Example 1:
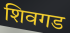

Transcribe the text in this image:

शिवगड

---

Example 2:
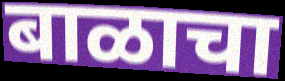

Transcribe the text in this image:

बाळाचा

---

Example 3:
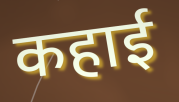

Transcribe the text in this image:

कहाई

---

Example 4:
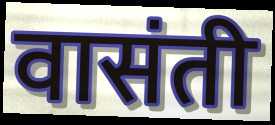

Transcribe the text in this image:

वासंती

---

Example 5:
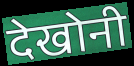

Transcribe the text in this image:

देखोनी